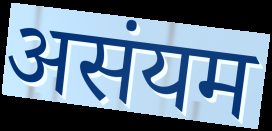
असंयम